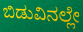
ಬಿಡುವಿನಲ್ಲೇ